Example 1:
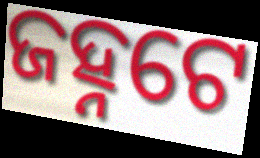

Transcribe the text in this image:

ଜହ୍ନଟେ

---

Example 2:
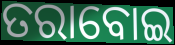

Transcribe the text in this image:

ତରାବୋଇ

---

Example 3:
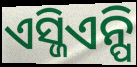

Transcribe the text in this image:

ଏସ୍ଜିଏନ୍ପି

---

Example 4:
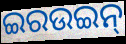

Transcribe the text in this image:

ଇରଉଇନ୍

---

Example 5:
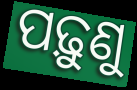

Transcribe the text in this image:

ପଢ଼ୁଣୁ